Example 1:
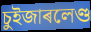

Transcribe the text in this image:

চুইজাৰলেণ্ড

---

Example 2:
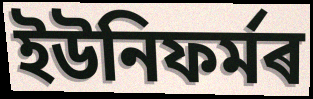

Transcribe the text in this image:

ইউনিফৰ্মৰ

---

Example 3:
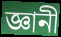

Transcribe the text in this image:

জ্ঞানী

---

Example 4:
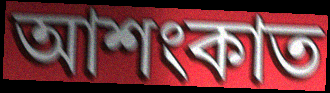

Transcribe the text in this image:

আশংকাত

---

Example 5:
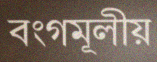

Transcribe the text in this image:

বংগমূলীয়